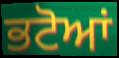
ਭਟੋਆਂ